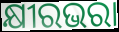
କ୍ଷୀରଭରା